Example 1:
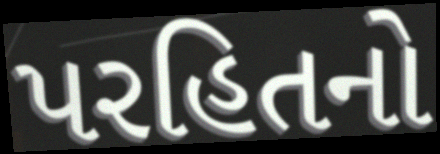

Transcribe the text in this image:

પરહિતનો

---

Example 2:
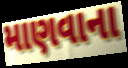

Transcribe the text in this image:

માણવાના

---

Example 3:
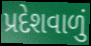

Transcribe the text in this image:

પ્રદેશવાળું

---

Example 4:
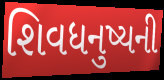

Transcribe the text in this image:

શિવધનુષ્યની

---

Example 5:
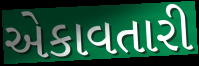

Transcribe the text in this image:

એકાવતારી